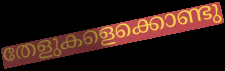
തേളുകളെക്കൊണ്ടു